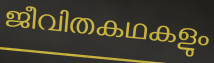
ജീവിതകഥകളും